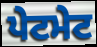
ਪੇਟਮੇਟ